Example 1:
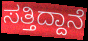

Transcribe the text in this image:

ಸತ್ತಿದ್ದಾನೆ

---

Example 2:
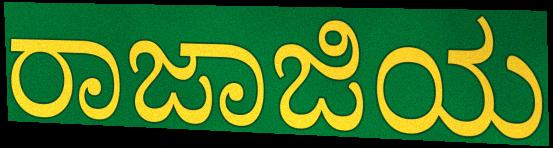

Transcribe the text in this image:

ರಾಜಾಜಿಯ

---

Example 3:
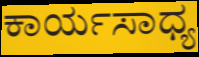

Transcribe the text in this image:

ಕಾರ್ಯಸಾಧ್ಯ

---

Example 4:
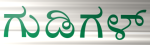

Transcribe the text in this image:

ಗುಡಿಗಳ್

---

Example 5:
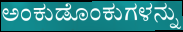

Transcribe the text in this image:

ಅಂಕುಡೊಂಕುಗಳನ್ನು